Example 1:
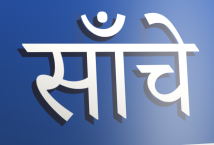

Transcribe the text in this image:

साँचे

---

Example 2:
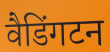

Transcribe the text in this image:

वैडिंगटन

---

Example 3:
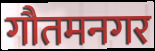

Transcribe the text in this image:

गौतमनगर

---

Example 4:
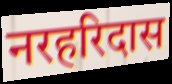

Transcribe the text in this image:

नरहरिदास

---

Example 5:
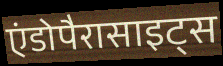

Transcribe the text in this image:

एंडोपैरासाइट्स